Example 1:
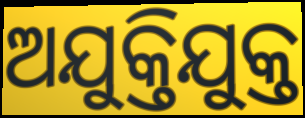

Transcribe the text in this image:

ଅଯୁକ୍ତିଯୁକ୍ତ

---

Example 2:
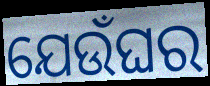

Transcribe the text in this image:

ଯେଉଁଘର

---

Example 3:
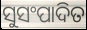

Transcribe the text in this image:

ସୁସଂପାଦିତ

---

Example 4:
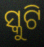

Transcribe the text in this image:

ସ୍କୁଟି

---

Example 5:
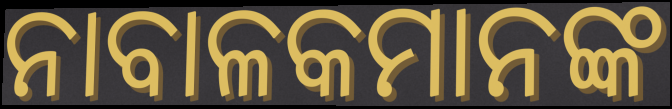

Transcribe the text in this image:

ନାବାଳକମାନଙ୍କ